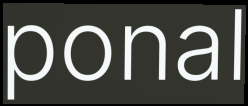
ponal